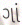
ગાં